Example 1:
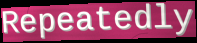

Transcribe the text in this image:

Repeatedly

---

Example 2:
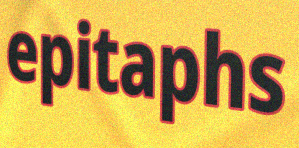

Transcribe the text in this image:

epitaphs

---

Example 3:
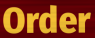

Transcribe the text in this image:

Order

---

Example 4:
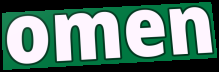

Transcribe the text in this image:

omen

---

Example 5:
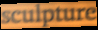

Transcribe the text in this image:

sculpture